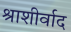
श्राशीर्वाद